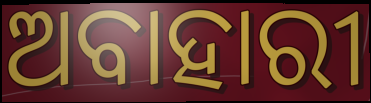
ଅବାହାରୀ